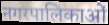
नगरपालिकाओं